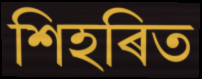
শিহৰিত